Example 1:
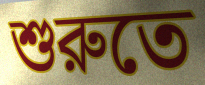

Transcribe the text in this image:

শুরুতে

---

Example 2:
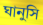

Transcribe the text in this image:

ঘানুসি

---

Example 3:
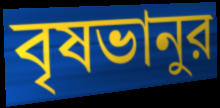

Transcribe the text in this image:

বৃষভানুর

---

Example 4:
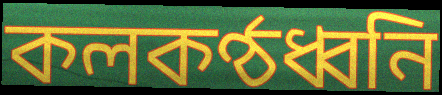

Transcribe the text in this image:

কলকণ্ঠধ্বনি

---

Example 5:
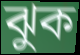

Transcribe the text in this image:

ঝুক